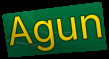
Agun